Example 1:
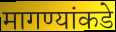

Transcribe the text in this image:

मागण्यांकडे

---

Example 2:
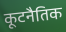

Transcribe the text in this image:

कूटनैतिक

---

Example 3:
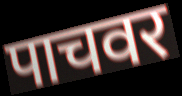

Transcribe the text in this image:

पाचवर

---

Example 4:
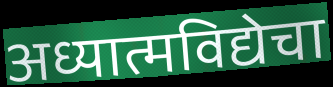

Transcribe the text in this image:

अध्यात्मविद्येचा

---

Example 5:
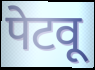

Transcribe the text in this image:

पेटवू